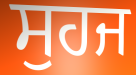
ਸੁਹਜ